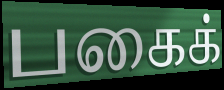
பகைக்